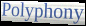
Polyphony